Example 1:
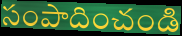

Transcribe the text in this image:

సంపాదించండి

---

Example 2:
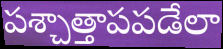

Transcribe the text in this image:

పశ్చాత్తాపపడేలా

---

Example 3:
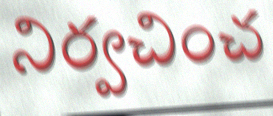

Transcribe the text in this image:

నిర్వచించ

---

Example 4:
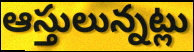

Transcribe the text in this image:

ఆస్తులున్నట్లు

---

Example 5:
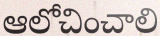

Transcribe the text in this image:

ఆలోచించాలి